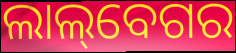
ଲାଲ୍‌ବେଗର